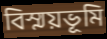
বিস্ময়ভূমি